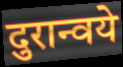
दुरान्वये